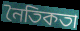
নৈতিকতা